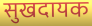
सुखदायक